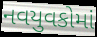
નવયુવકોમાં